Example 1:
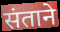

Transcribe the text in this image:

संताने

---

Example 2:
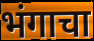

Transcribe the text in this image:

भंगाचा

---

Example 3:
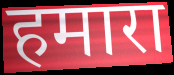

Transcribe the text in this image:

हमारा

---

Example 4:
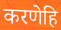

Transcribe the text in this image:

करणेहि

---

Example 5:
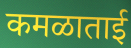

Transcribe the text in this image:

कमळाताई